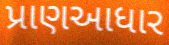
પ્રાણઆધાર